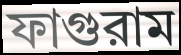
ফাগুরাম